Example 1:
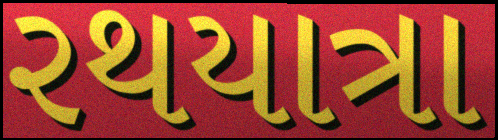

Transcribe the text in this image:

રથયાત્રા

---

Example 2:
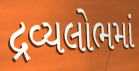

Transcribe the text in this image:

દ્રવ્યલોભમાં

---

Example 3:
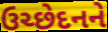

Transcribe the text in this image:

ઉચ્છેદનને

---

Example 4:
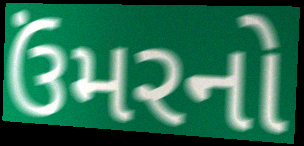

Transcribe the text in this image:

ઉંમરનો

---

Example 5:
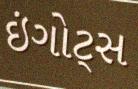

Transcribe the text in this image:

ઇંગોટ્સ